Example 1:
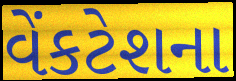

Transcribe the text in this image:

વેંકટેશના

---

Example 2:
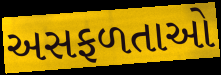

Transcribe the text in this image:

અસફળતાઓ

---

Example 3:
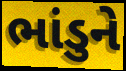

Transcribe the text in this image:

ભાંડુને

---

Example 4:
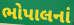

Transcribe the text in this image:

ભોપાલનાં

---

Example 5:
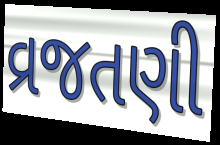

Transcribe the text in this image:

વ્રજતણી